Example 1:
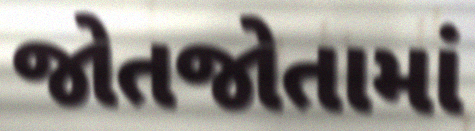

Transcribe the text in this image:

જોતજોતામાં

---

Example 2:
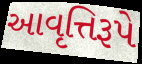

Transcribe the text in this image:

આવૃત્તિરૂપે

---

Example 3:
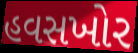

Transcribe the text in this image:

હવસખોર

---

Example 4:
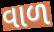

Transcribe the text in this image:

વાળ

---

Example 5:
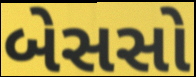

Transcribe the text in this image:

બેસસો